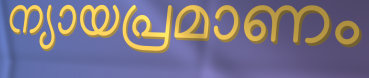
ന്യായപ്രമാണം